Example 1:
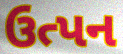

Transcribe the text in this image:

ઉત્પન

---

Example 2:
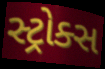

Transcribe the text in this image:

સ્ટ્રોક્સ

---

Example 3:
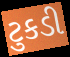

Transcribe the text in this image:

ટુકડી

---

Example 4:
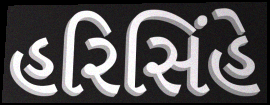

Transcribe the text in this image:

હરિસિંહે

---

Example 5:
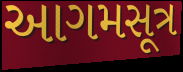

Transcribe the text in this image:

આગમસૂત્ર